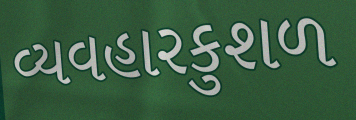
વ્યવહારકુશળ